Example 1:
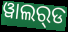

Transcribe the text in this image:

ୱାଲର୍‌ଡ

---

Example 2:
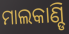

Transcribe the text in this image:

ମାଲକାଣ୍ଡି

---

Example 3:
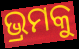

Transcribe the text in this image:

ଭ୍ରମକୁ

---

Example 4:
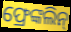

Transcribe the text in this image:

ଫ୍ରେଙ୍କଲିନ୍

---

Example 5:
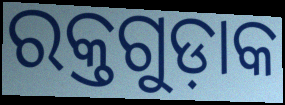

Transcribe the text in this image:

ରକ୍ତଗୁଡ଼ାକ